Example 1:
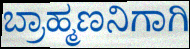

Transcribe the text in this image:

ಬ್ರಾಹ್ಮಣನಿಗಾಗಿ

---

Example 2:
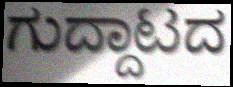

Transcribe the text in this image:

ಗುದ್ದಾಟದ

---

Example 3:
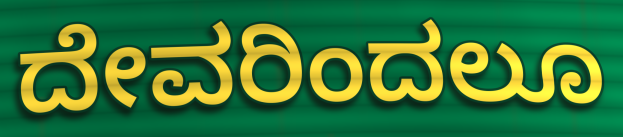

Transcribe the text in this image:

ದೇವರಿಂದಲೂ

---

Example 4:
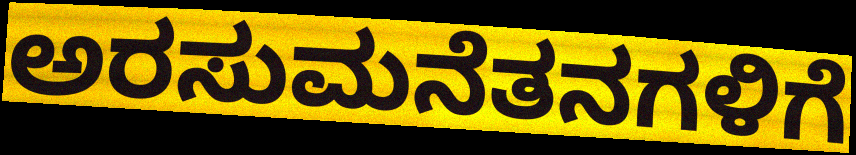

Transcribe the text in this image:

ಅರಸುಮನೆತನಗಳಿಗೆ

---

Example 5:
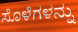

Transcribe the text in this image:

ಸೊಳೆಗಳನ್ನು